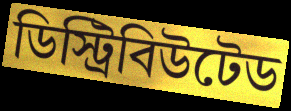
ডিস্ট্রিবিউটেড